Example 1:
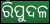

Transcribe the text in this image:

ରିପୁଦଳ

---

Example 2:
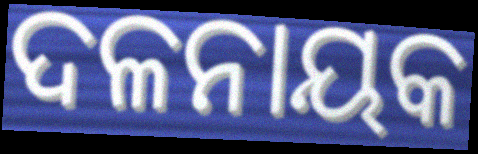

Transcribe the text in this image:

ଦଳନାୟକ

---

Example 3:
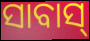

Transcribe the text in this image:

ସାବାସ୍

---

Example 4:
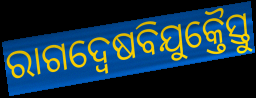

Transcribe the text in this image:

ରାଗଦ୍ୱେଷବିଯୁକ୍ତୈସ୍ତୁ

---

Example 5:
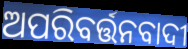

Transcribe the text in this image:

ଅପରିବର୍ତ୍ତନବାଦୀ